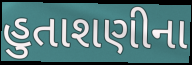
હુતાશણીના